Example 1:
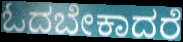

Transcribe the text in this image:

ಓದಬೇಕಾದರೆ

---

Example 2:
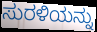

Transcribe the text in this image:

ಸುರಳಿಯನ್ನು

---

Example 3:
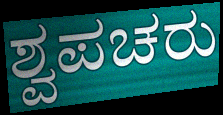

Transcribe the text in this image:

ಶ್ವಪಚರು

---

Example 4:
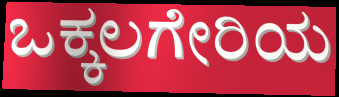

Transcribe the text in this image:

ಒಕ್ಕಲಗೇರಿಯ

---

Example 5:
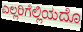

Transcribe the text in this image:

ಎಲ್ಲರಿಗೆಲ್ಲಿಯದೊ